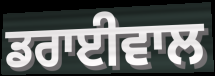
ਡਰਾਈਵਾਲ